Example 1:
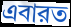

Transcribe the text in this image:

এবারত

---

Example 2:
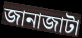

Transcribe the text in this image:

জানাজাটা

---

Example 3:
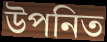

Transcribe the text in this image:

উপনিত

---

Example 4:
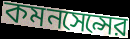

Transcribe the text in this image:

কমনসেন্সের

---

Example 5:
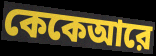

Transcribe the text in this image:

কেকেআরে